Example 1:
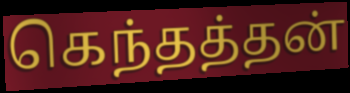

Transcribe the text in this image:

கெந்தத்தன்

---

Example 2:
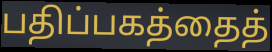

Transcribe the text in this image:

பதிப்பகத்தைத்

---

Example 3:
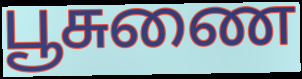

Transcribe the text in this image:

பூசுணை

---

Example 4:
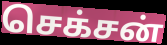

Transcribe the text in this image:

செக்சன்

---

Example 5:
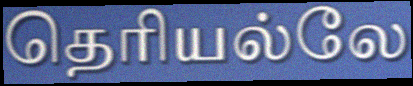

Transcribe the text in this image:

தெரியல்லே